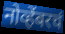
नोव्हेंबरचं